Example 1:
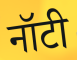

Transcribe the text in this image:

नॉटी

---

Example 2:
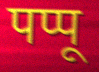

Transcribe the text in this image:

पप्पू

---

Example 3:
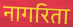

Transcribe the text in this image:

नागरिता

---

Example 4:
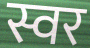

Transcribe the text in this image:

स्वर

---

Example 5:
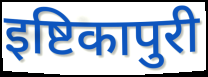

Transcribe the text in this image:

इष्टिकापुरी